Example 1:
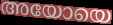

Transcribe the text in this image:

അയോയെ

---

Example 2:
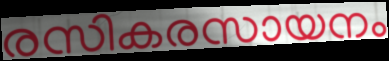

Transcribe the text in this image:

രസികരസായനം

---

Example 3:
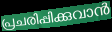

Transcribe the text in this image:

പ്രചരിപ്പിക്കുവാൻ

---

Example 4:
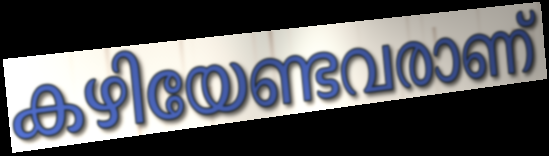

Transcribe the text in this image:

കഴിയേണ്ടവരാണ്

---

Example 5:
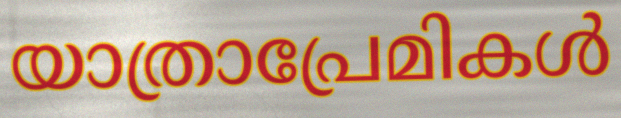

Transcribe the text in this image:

യാത്രാപ്രേമികൾ